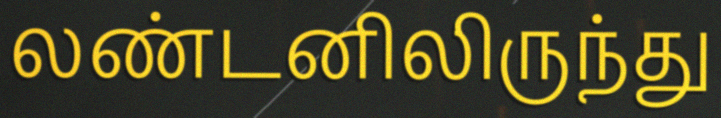
லண்டனிலிருந்து